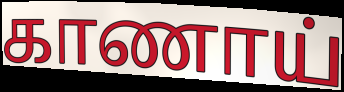
காணாய்